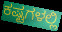
ಕಷ್ಟಗಳಲ್ಲಿ